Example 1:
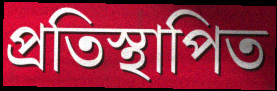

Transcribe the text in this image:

প্রতিস্থাপিত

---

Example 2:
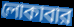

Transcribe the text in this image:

লোকাবার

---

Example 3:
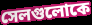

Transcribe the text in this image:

সেলগুলোকে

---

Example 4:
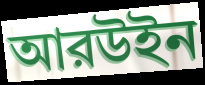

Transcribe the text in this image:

আরউইন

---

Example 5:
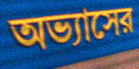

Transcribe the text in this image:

অভ্যাসের